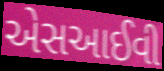
એસઆઈવી